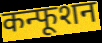
कन्फूशन